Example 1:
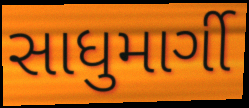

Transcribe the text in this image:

સાધુમાર્ગી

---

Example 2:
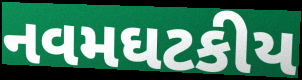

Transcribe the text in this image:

નવમઘટકીય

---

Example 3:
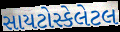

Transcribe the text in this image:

સાયટોસ્કેલેટલ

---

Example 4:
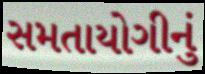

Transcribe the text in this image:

સમતાયોગીનું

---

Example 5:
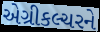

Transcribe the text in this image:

એગ્રીકલ્ચરને